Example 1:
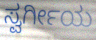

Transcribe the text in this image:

ಸ್ವರ್ಗೀಯ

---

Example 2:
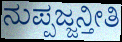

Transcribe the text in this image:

ನುಪ್ಪಜ್ಜನ್ತೀತಿ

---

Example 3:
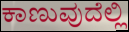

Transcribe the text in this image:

ಕಾಣುವುದೆಲ್ಲಿ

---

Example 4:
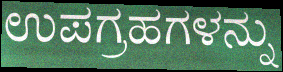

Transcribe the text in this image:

ಉಪಗ್ರಹಗಳನ್ನು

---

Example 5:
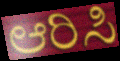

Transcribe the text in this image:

ಆರಿಸಿ